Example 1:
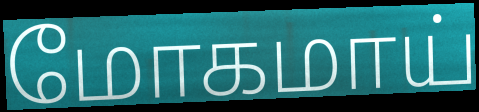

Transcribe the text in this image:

மோகமாய்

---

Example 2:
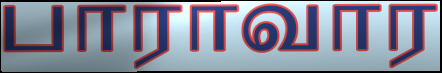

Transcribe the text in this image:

பாராவார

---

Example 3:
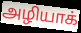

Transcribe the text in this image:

அழியாக்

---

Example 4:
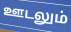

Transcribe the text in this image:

ஊடலும்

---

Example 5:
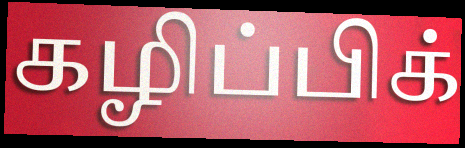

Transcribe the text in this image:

கழிப்பிக்